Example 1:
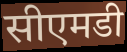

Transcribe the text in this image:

सीएमडी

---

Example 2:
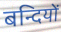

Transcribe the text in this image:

बन्दियों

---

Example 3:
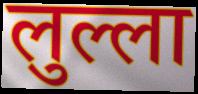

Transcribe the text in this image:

लुल्ला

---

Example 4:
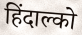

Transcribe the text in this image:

हिंदाल्को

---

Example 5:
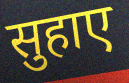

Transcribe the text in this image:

सुहाए